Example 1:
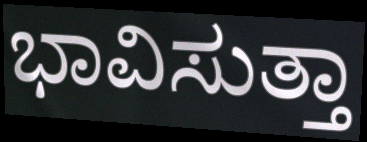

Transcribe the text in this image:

ಭಾವಿಸುತ್ತಾ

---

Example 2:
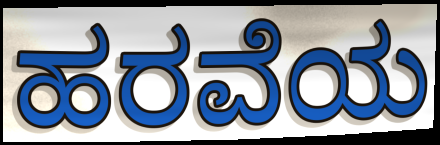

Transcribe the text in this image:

ಹರವೆಯ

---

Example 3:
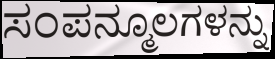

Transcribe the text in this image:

ಸಂಪನ್ಮೂಲಗಳನ್ನು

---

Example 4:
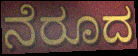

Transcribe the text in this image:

ನೆರೂದ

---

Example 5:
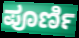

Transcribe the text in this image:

ಪೂರ್ಣಿ